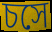
চসে